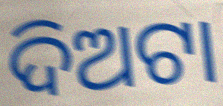
ଦିଅଟା